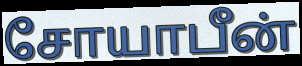
சோயாபீன்